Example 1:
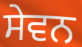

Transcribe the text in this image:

ਸੇਵਨ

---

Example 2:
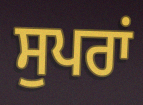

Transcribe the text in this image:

ਸੁਪਰਾਂ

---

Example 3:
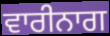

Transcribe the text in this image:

ਵਾਰੀਨਾਗ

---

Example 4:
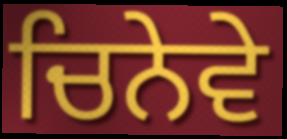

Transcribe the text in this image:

ਚਿਨੇਵੇ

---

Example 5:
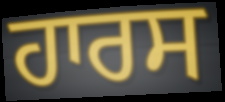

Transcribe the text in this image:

ਹਾਰਸ